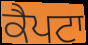
ਕੈਪਟਾ